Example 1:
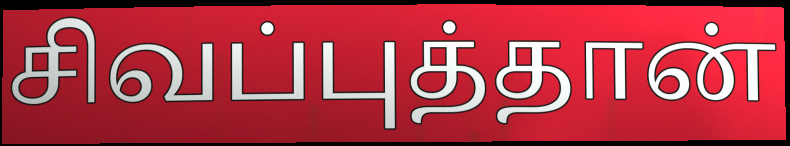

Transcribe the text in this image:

சிவப்புத்தான்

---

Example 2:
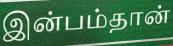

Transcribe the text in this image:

இன்பம்தான்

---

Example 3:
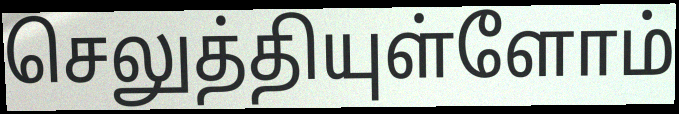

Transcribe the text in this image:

செலுத்தியுள்ளோம்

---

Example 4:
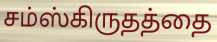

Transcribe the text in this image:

சம்ஸ்கிருதத்தை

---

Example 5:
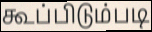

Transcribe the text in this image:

கூப்பிடும்படி